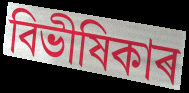
বিভীষিকাৰ